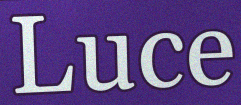
Luce